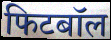
फिटबॉल